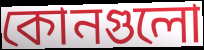
কোনগুলো